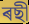
ৰছী